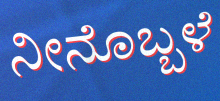
ನೀನೊಬ್ಬಳೆ